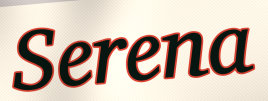
Serena